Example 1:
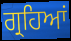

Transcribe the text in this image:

ਗ੍ਰਹਿਆਂ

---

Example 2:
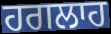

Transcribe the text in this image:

ਹਗਲਾਹ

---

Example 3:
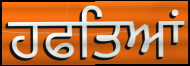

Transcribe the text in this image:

ਹਫਤਿਆਂ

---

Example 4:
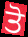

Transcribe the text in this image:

ਤੋ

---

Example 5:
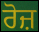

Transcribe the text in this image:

ਰੋਜ਼